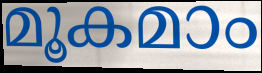
മൂകമാം